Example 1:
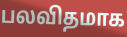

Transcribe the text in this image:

பலவிதமாக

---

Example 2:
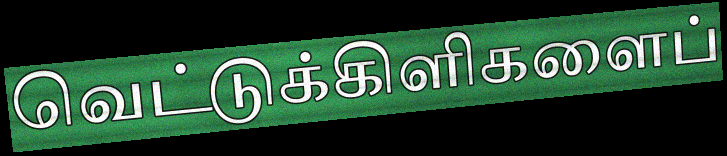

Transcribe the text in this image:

வெட்டுக்கிளிகளைப்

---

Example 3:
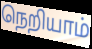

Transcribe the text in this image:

நெறியாம்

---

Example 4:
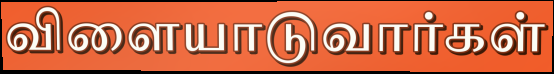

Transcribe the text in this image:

விளையாடுவார்கள்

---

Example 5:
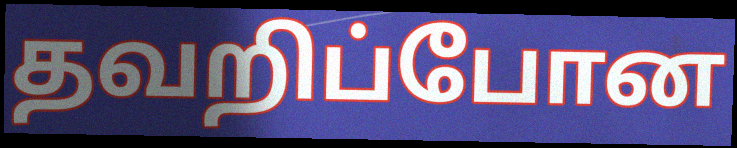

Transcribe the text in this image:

தவறிப்போன